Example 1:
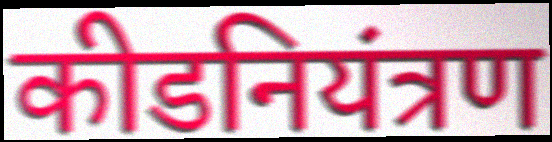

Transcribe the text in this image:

कीडनियंत्रण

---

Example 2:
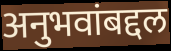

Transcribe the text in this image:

अनुभवांबद्दल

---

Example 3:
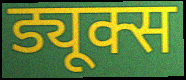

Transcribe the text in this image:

ड्यूक्स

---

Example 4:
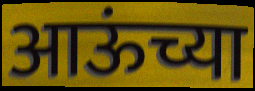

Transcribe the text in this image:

आऊंच्या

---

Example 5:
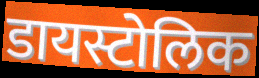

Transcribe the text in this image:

डायस्टोलिक